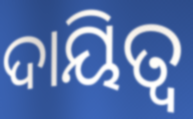
ଦାୟିତ୍ବ